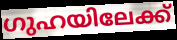
ഗുഹയിലേക്ക്